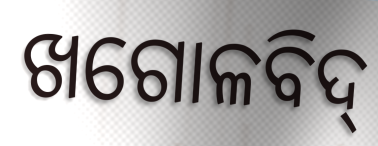
ଖଗୋଳବିଦ୍